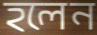
হলেন